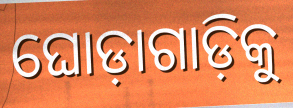
ଘୋଡ଼ାଗାଡ଼ିକୁ